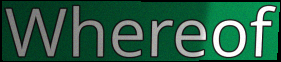
Whereof